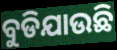
ବୁଡିଯାଉଛି